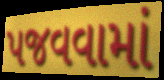
પજવવામાં